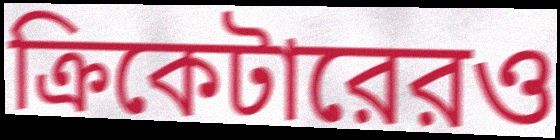
ক্রিকেটারেরও